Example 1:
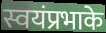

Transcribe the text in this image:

स्वयंप्रभाके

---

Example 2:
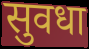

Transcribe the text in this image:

सुवधा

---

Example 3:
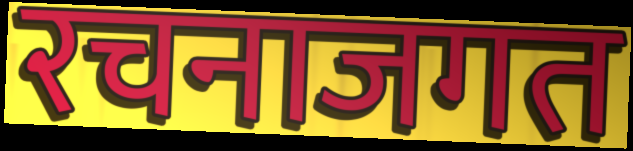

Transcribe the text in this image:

रचनाजगत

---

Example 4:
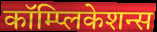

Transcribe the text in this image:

कॉम्प्लिकेशन्स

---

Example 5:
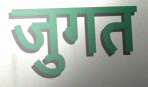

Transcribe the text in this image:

जुगत